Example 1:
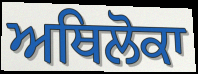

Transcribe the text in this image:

ਅਥਿਲੋਕਾ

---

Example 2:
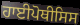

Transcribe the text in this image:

ਹਾਈਪੋਥੀਸਿਸ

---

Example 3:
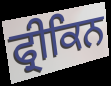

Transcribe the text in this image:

ਫ੍ਰੀਕਿਨ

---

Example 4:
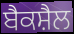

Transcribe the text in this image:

ਬੈਕਸ਼ੈਲ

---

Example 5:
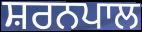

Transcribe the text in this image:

ਸ਼ਰਨਪਾਲ